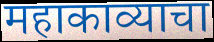
महाकाव्याचा